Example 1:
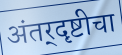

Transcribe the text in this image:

अंतर्दृष्टीचा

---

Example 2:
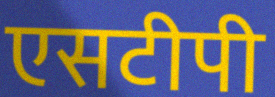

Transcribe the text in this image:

एसटीपी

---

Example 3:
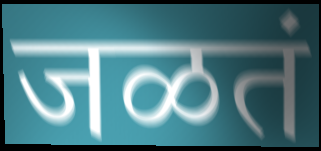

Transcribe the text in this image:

जळतं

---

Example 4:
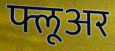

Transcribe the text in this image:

फ्लूअर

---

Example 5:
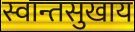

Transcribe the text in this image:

स्वान्तसुखाय